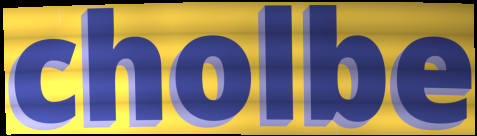
cholbe